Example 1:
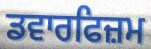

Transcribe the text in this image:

ਡਵਾਰਫਿਜ਼ਮ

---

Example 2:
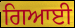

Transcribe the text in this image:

ਗਿਆਈ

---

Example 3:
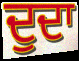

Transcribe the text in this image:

ਦੁਦਾ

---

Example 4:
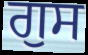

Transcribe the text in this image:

ਗੁਸ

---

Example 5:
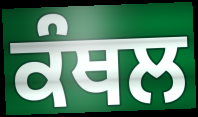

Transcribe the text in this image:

ਕੰਥਲ